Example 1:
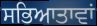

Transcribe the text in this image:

ਸਭਿਆਤਾਵਾਂ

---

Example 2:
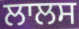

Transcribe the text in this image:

ਲਾਲਸ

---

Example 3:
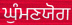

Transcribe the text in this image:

ਘੁੰਮਣਯੋਗ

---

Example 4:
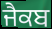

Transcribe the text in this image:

ਜੈਕਬ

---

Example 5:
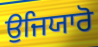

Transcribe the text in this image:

ਉਜਿਯਾਰੋ